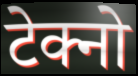
टेक्नो